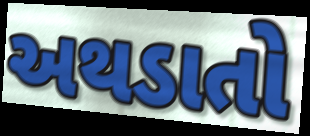
અથડાતો